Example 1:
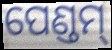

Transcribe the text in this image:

ପେଣ୍ଡମ୍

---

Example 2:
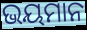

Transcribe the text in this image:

ଭୟମାନ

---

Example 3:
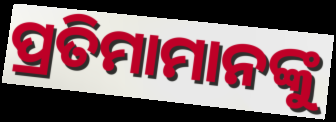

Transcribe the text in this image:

ପ୍ରତିମାମାନଙ୍କୁ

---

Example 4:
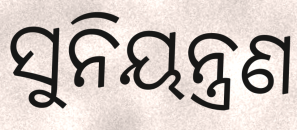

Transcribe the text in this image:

ସୁନିୟନ୍ତ୍ରଣ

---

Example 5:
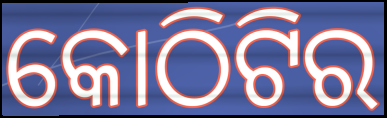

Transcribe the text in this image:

କୋଠିଟିର